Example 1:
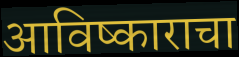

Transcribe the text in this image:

आविष्काराचा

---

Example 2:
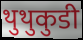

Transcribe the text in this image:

थुथुकुडी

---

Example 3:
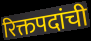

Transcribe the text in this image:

रिक्तपदांची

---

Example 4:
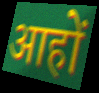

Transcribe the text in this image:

आहों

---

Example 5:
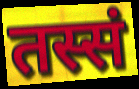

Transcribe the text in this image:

तस्सं